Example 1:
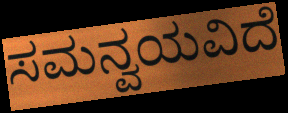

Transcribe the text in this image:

ಸಮನ್ವಯವಿದೆ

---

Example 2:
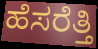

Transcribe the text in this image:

ಹೆಸರೆತ್ತಿ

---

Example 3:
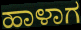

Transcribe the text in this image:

ಹಾಳಾಗ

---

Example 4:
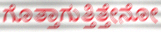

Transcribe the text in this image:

ಗೊತ್ತಾಗುತ್ತಿತ್ತೇನೋ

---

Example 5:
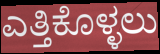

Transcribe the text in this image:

ಎತ್ತಿಕೊಳ್ಳಲು